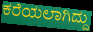
ಕರೆಯಲಾಗಿದ್ದು